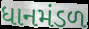
ધાનમંડળ